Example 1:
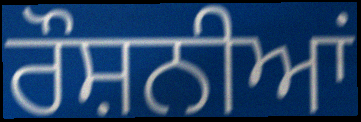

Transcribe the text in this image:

ਰੌਸ਼ਨੀਆਂ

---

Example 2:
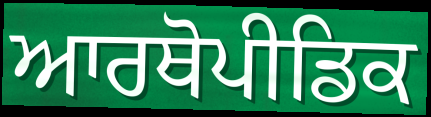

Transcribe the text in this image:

ਆਰਥੋਪੀਡਿਕ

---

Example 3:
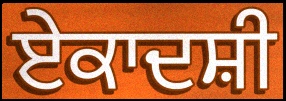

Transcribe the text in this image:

ਏਕਾਦਸ਼ੀ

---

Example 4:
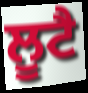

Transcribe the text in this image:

ਲੂਟੈ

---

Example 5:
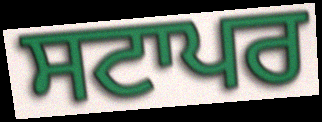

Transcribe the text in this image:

ਸਟਾਪਰ